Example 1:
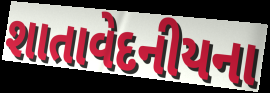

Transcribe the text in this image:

શાતાવેદનીયના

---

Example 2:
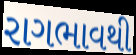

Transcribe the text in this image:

રાગભાવથી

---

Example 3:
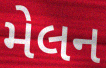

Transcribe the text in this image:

મેલન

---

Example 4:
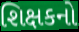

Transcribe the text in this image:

શિક્ષકનો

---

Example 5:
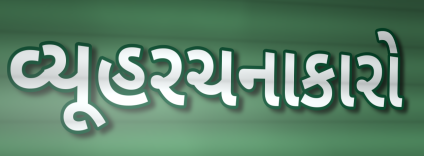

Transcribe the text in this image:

વ્યૂહરચનાકારો